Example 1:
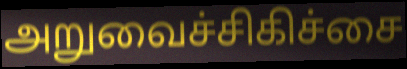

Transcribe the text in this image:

அறுவைச்சிகிச்சை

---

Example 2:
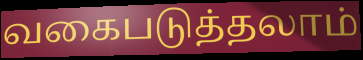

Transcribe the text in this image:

வகைபடுத்தலாம்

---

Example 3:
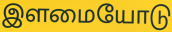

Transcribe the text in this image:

இளமையோடு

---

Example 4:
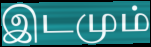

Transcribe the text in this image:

இடமும்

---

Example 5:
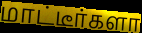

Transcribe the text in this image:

மாட்டீர்களா